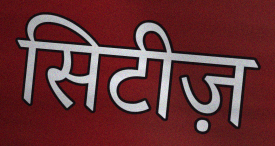
सिटीज़